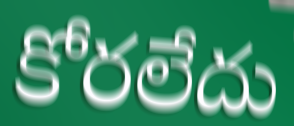
కోరలేదు